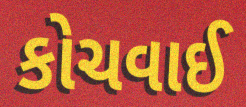
કોચવાઈ